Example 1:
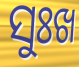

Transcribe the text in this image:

ସୁଃଖ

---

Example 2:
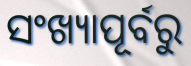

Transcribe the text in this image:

ସଂଖ୍ୟାପୂର୍ବରୁ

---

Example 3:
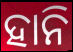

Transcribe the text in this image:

ହାନି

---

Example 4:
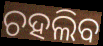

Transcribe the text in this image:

ଚହଲିବ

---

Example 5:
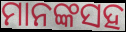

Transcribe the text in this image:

ମାନଙ୍କସହ